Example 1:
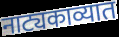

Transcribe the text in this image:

नाट्यकाव्यात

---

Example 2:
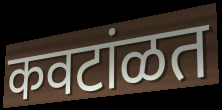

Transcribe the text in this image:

कवटांळत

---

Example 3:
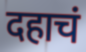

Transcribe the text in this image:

दहाचं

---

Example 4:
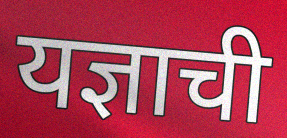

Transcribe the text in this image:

यज्ञाची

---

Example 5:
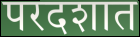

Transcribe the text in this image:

परदशात